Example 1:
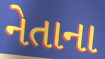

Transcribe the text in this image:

નેતાના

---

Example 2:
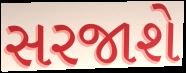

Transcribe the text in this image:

સરજાશે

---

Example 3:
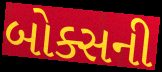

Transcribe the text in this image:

બોક્સની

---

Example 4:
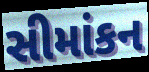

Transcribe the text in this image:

સીમાંકન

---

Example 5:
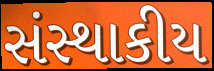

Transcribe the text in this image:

સંસ્થાકીય